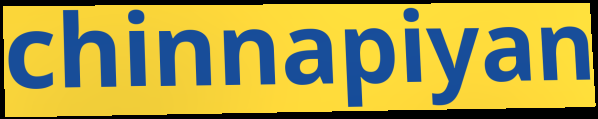
chinnapiyan